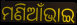
ମଣିଆଁଭାଇ